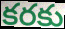
కరకు